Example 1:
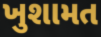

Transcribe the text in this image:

ખુશામત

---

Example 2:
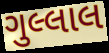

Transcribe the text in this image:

ગુલ્લાલ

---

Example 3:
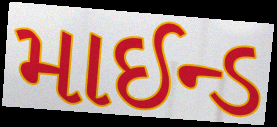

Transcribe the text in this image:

માઈન્ડ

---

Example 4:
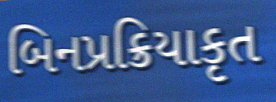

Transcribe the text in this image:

બિનપ્રક્રિયાકૃત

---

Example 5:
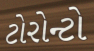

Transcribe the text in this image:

ટોરોન્ટો